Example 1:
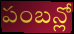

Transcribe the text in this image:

పంబన్లో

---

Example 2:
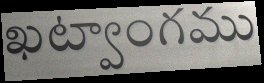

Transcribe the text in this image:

ఖట్వాంగము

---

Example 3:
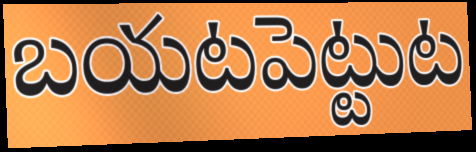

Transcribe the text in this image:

బయటపెట్టుట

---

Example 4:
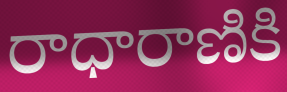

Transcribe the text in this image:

రాధారాణికి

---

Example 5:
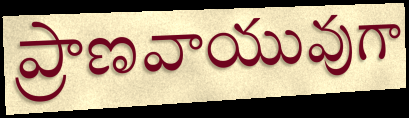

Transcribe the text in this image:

ప్రాణవాయువుగా